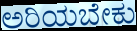
ಅರಿಯಬೇಕು